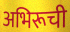
अभिरूची